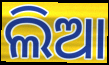
ଲିଆ